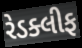
રેડક્લીફ